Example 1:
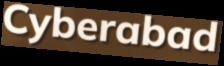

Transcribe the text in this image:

Cyberabad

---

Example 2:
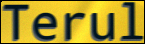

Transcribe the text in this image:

Terul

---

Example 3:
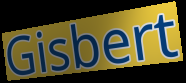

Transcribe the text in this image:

Gisbert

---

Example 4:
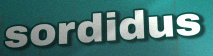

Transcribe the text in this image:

sordidus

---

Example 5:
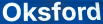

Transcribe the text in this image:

Oksford